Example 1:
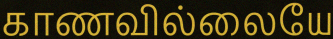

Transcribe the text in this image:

காணவில்லையே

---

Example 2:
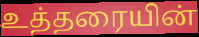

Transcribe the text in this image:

உத்தரையின்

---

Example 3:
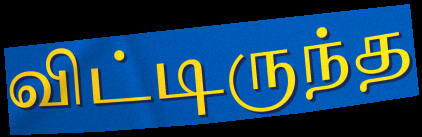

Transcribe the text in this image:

விட்டிருந்த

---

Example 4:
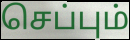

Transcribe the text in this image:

செப்பும்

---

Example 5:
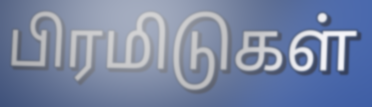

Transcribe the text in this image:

பிரமிடுகள்